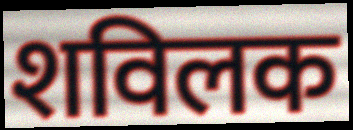
शविलक